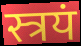
स्त्रयं